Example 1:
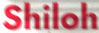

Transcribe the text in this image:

Shiloh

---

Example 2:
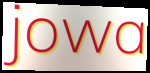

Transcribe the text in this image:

jowa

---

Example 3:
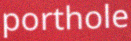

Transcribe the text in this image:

porthole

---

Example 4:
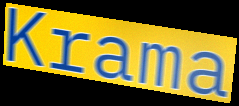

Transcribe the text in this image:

Krama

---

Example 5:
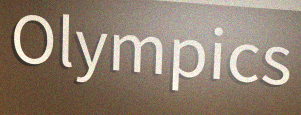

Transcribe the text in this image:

Olympics